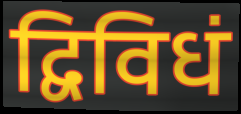
द्विविधं